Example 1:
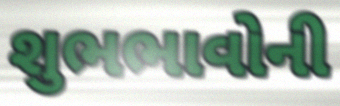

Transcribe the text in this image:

શુભભાવોની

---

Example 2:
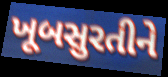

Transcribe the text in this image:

ખૂબસુરતીને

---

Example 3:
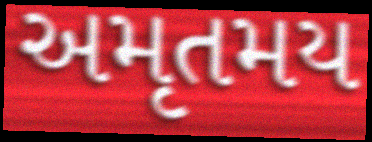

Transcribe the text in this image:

અમૃતમય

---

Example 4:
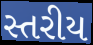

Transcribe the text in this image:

સ્તરીય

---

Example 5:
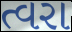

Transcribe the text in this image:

ત્વરા